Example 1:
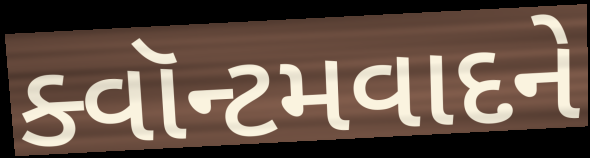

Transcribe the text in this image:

ક્વૉન્ટમવાદને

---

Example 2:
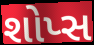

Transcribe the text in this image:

શોપ્સ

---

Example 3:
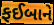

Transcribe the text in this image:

ફઈબાને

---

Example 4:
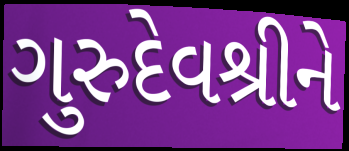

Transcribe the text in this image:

ગુરુદેવશ્રીને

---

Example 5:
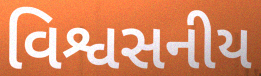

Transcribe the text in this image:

વિશ્વસનીય